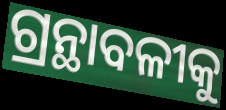
ଗ୍ରନ୍ଥାବଳୀକୁ